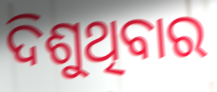
ଦିଶୁଥିବାର